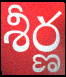
శీర్ణ